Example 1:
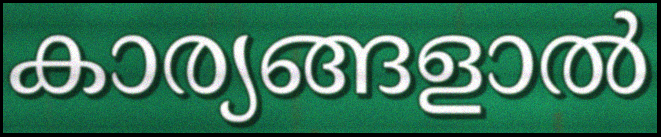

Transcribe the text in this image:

കാര്യങ്ങളാൽ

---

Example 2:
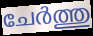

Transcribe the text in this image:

ചേർത്തു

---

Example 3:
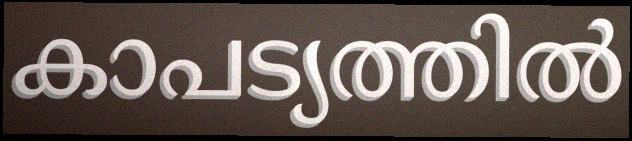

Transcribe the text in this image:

കാപട്യത്തിൽ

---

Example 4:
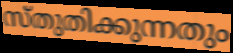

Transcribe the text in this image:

സ്തുതിക്കുന്നതും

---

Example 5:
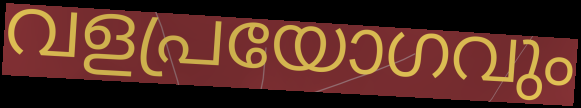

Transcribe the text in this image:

വളപ്രയോഗവും